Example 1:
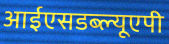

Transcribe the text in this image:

आईएसडब्ल्यूएपी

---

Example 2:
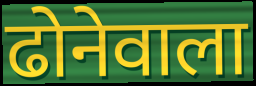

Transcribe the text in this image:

ढोनेवाला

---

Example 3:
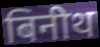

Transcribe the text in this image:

बिनीथ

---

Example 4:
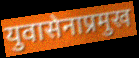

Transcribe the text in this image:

युवासेनाप्रमुख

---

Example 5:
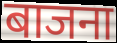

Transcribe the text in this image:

बाजना